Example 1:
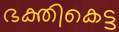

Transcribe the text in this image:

ഭക്തികെട്ട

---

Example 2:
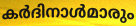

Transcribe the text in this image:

കർദിനാൾമാരും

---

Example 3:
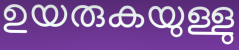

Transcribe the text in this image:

ഉയരുകയുള്ളു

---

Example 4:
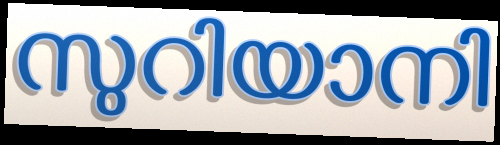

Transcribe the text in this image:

സുറിയാനി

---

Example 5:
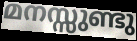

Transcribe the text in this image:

മനസ്സുണ്ടു